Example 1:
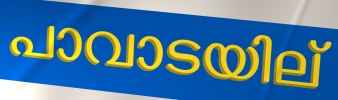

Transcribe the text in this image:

പാവാടയില്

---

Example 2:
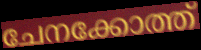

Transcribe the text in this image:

ചേനക്കോത്ത്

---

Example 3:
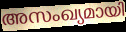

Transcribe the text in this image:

അസംഖ്യമായി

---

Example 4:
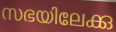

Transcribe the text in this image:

സഭയിലേക്കു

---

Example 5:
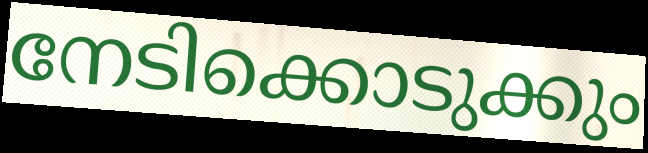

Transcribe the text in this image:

നേടിക്കൊടുക്കും